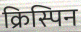
क्रिस्पिन